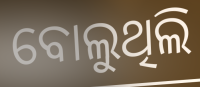
ବୋଲୁଥିଲି